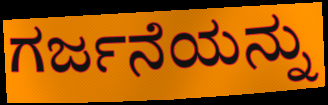
ಗರ್ಜನೆಯನ್ನು